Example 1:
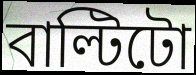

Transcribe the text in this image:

বাল্টিটো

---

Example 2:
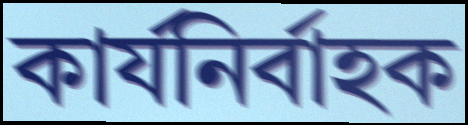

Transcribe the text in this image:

কাৰ্যনিৰ্বাহক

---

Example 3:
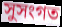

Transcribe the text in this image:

সুসংগত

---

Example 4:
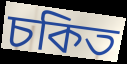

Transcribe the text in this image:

চকিত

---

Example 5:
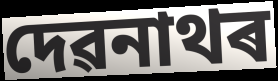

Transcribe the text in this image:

দেৱনাথৰ